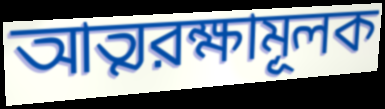
আত্মরক্ষামূলক